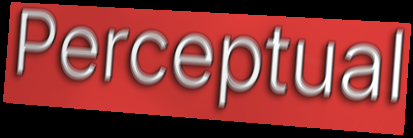
Perceptual